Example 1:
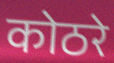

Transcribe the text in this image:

कोठरे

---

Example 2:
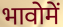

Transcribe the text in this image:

भावोमें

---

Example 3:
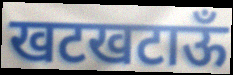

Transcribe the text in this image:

खटखटाऊँ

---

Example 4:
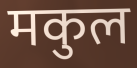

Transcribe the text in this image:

मकुल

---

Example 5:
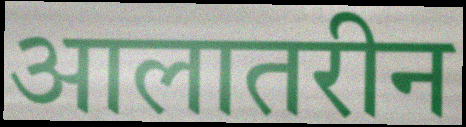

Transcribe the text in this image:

आलातरीन